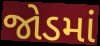
જોડમાં